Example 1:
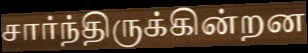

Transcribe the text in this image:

சார்ந்திருக்கின்றன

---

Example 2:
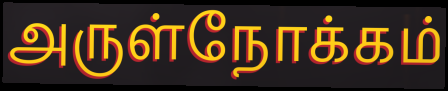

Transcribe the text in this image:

அருள்நோக்கம்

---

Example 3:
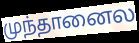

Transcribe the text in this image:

முந்தானைல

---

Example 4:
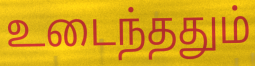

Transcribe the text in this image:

உடைந்ததும்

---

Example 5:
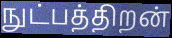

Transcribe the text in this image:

நுட்பத்திறன்